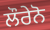
ਲੌਰੇਨੋ